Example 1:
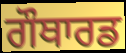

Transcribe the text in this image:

ਗੌਥਾਰਡ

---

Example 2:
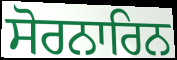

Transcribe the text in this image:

ਸੋਰਨਾਰਿਨ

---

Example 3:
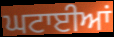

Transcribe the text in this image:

ਘਟਾਈਆਂ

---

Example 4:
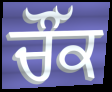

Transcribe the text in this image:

ਚੌੱਕ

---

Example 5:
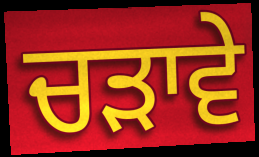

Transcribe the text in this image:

ਚੜਾਵੇ